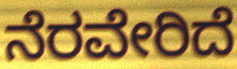
ನೆರವೇರಿದೆ